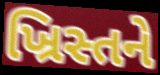
ખ્રિસ્તને